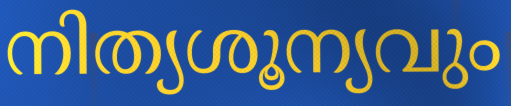
നിത്യശൂന്യവും